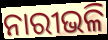
ନାରୀଭଳି